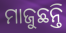
ମାଜୁଛନ୍ତି